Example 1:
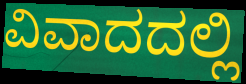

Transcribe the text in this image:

ವಿವಾದದಲ್ಲಿ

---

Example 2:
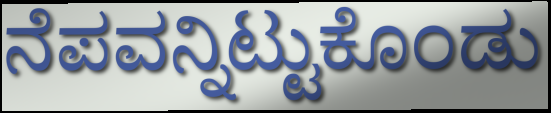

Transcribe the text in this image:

ನೆಪವನ್ನಿಟ್ಟುಕೊಂಡು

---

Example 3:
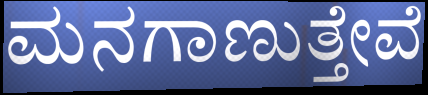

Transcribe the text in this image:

ಮನಗಾಣುತ್ತೇವೆ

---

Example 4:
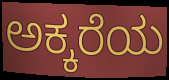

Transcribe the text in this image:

ಅಕ್ಕರೆಯ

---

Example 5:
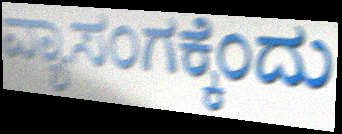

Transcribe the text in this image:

ವ್ಯಾಸಂಗಕ್ಕೆಂದು